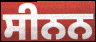
ਸੀਨਨ